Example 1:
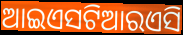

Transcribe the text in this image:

ଆଇଏସଟିଆରଏସି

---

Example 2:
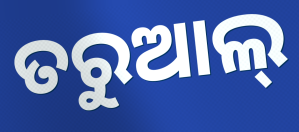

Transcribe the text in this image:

ତରୁଆଲ୍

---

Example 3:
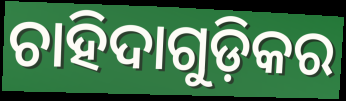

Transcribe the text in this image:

ଚାହିଦାଗୁଡ଼ିକର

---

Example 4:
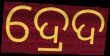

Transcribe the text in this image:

ଦ୍ରେଦ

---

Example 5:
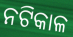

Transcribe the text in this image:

ନଟିକାଳ